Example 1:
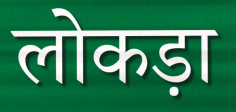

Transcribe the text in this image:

लोकड़ा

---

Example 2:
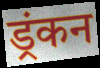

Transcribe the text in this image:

ड्रंकन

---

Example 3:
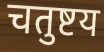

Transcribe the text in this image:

चतुष्टय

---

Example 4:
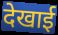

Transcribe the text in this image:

देखाई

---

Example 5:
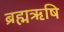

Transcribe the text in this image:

ब्रह्मऋषि